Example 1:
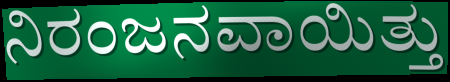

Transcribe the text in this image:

ನಿರಂಜನವಾಯಿತ್ತು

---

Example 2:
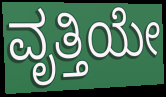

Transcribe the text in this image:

ವೃತ್ತಿಯೇ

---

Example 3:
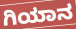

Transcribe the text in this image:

ಗಿಯಾನ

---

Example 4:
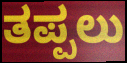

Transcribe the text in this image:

ತಪ್ಪಲು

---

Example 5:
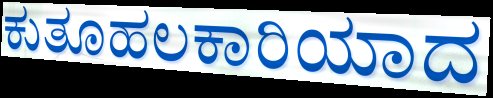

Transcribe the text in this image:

ಕುತೂಹಲಕಾರಿಯಾದ